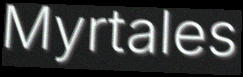
Myrtales